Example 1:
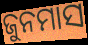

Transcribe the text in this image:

ଜୁନମାସ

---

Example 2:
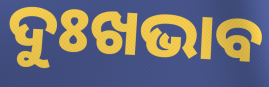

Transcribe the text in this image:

ଦୁଃଖଭାବ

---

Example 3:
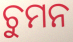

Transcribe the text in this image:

ଚୁମନ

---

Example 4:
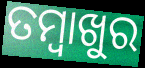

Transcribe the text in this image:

ତମ୍ବାଖୁର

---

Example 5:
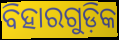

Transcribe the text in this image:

ବିହାରଗୁଡ଼ିକ